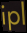
ipl